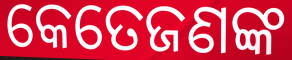
କେତେଜଣଙ୍କ